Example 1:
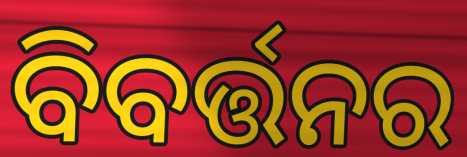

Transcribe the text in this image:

ବିବର୍ତ୍ତନର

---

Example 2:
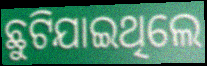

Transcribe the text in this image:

ଛୁଟିଯାଇଥିଲେ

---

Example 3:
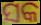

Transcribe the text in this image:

ସକ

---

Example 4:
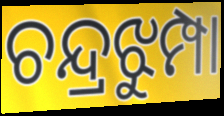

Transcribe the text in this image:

ଚନ୍ଦ୍ରଝୁମ୍ପା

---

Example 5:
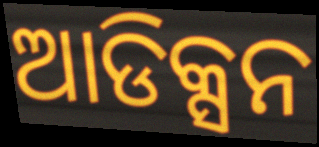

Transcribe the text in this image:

ଆଡିକ୍ସନ